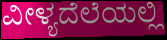
ವೀಳ್ಯದೆಲೆಯಲ್ಲಿ